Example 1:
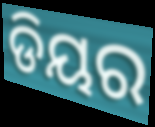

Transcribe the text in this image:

ଡିୟର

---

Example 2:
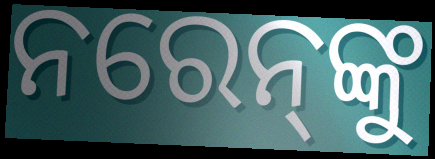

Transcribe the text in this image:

ନରେନ୍‍ଙ୍କୁ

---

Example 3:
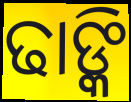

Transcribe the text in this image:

ଢାଙ୍କି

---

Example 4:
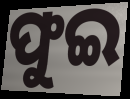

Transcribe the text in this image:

ଫୁଇ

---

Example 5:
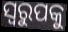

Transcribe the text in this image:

ସ୍ଵରୁପକୁ